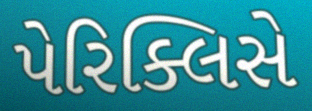
પેરિક્લિસે